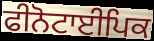
ਫੀਨੋਟਾਈਪਿਕ